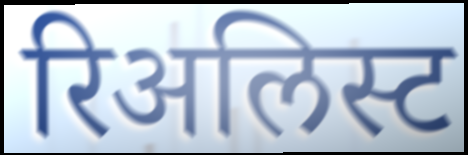
रिअलिस्ट